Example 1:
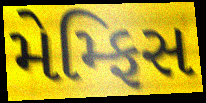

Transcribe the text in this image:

મેમ્ફિસ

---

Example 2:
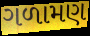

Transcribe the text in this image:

ગળામણ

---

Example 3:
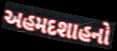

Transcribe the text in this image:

અહમદશાહનો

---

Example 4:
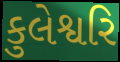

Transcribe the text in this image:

કુલેશ્વરિ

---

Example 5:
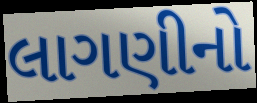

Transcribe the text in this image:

લાગણીનો